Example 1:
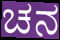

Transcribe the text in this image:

ಚನ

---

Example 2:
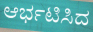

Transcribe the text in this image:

ಆರ್ಭಟಿಸಿದ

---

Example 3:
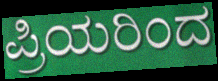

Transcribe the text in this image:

ಪ್ರಿಯರಿಂದ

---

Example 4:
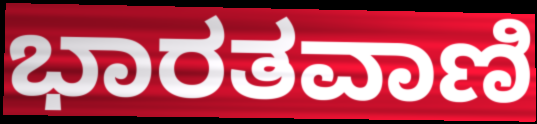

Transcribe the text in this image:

ಭಾರತವಾಣಿ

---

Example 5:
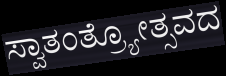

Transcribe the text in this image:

ಸ್ವಾತಂತ್ರ್ಯೋತ್ಸವದ